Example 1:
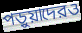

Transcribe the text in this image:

পড়ুয়াদেরও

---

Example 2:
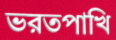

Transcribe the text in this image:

ভরতপাখি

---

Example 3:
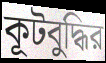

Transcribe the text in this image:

কূটবুদ্ধির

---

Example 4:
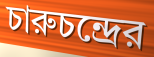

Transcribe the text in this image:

চারুচন্দ্রের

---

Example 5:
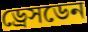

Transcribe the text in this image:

ড্রেসডেন